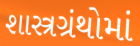
શાસ્ત્રગ્રંથોમાં